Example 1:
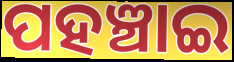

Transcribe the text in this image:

ପହଞ୍ଚାଇ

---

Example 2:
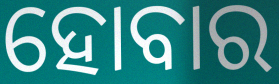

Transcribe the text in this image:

ହୋବାର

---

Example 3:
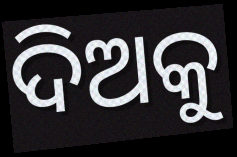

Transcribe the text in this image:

ଦିଅକୁ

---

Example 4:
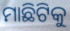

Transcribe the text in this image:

ମାଛିଟିକୁ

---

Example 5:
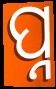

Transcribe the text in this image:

ପ୍ନ